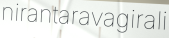
nirantaravagirali